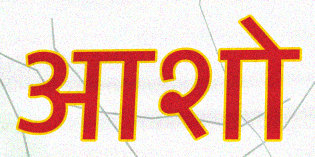
आशो